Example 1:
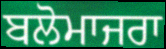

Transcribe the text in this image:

ਬਲੋਮਾਜਰਾ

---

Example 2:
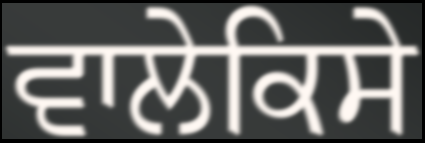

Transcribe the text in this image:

ਵਾਲੇਕਿਸੇ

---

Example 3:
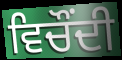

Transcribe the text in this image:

ਵਿਚੌਂਦੀ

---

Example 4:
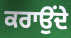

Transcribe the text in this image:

ਕਰਾਉੰਦੇ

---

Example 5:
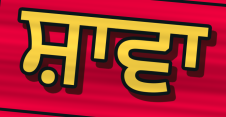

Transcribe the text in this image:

ਸ਼ਾਵਾ